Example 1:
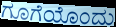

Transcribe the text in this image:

ಗೂಗೆಯೊಂದು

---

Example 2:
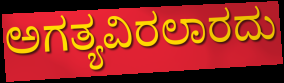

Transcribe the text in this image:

ಅಗತ್ಯವಿರಲಾರದು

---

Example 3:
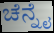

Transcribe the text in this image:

ಚೆನ್ನೈ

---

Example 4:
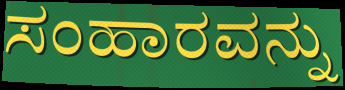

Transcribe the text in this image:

ಸಂಹಾರವನ್ನು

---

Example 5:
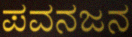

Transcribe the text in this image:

ಪವನಜನ